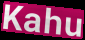
Kahu